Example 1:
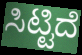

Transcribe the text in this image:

ಸಿಟ್ಟಿದೆ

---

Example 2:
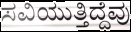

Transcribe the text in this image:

ಸವಿಯುತ್ತಿದ್ದೆವು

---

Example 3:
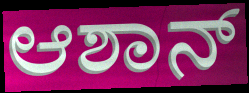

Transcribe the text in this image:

ಆಶಾನ್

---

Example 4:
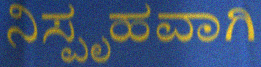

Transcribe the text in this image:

ನಿಸ್ಪೃಹವಾಗಿ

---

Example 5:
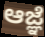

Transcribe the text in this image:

ಆಜ್ಞೆ